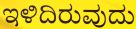
ಇಳಿದಿರುವುದು